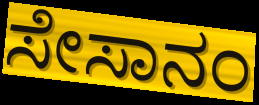
ಸೇಸಾನಂ